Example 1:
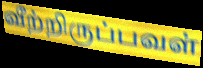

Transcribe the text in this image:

வீற்றிருப்பவள்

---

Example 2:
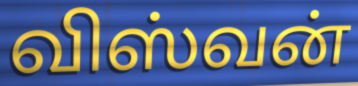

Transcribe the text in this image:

விஸ்வன்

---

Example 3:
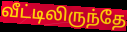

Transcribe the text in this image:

வீட்டிலிருந்தே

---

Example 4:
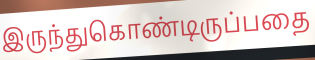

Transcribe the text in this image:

இருந்துகொண்டிருப்பதை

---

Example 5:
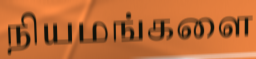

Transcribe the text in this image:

நியமங்களை